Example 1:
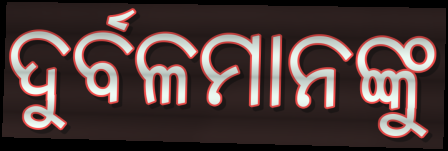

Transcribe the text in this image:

ଦୁର୍ବଳମାନଙ୍କୁ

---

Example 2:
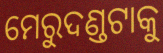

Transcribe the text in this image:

ମେରୁଦଣ୍ଡଟାକୁ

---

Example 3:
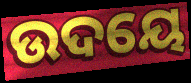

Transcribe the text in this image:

ଉଦୟେ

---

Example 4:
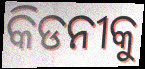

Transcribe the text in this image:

କିଡନୀକୁ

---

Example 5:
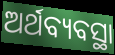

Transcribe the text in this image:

ଅର୍ଥବ୍ୟବସ୍ଥା